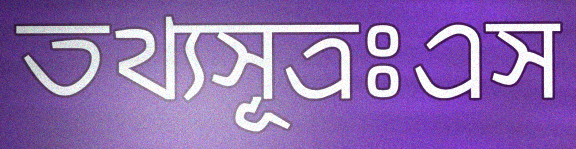
তথ্যসূত্রঃএস